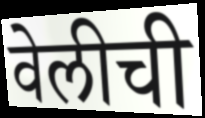
वेलीची